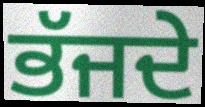
ਭੱਜਦੇ